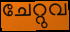
ചേറ്റുവ